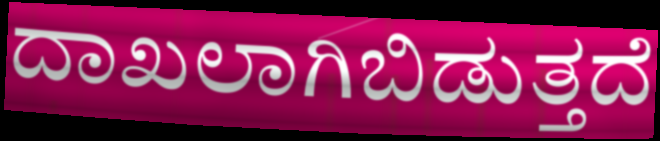
ದಾಖಲಾಗಿಬಿಡುತ್ತದೆ